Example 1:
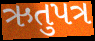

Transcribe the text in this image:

ઋતુપત્ર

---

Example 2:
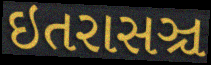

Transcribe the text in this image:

ઇતરાસઞ્ચ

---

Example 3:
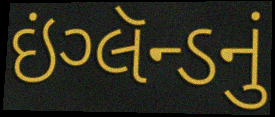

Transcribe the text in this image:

ઇંગ્લૅન્ડનું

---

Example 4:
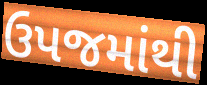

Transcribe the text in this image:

ઉપજમાંથી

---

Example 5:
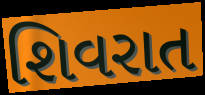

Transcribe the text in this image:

શિવરાત